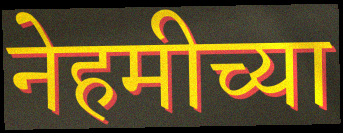
नेहमीच्या